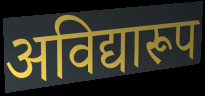
अविद्यारूप